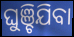
ଘୁଞ୍ଚିଯିବା